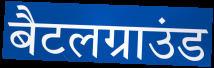
बैटलग्राउंड